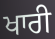
ਖਾਰੀ